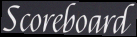
Scoreboard